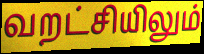
வறட்சியிலும்